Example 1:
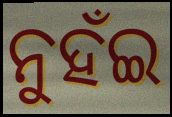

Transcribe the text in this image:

ନୁହଁଇ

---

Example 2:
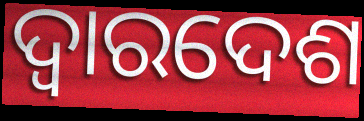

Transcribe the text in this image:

ଦ୍ୱାରଦେଶ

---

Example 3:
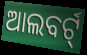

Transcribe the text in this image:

ଆଲବର୍ଟ୍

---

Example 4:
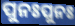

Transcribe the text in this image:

ପୁନଃପୁନଃ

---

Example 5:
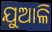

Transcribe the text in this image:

ଯୁଆଳି